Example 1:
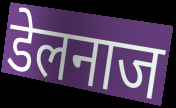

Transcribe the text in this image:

डेलनाज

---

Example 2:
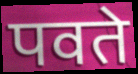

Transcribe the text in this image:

पवते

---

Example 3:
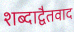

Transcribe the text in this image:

शब्दाद्वैतवाद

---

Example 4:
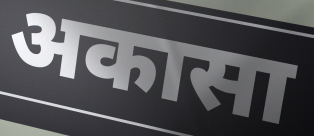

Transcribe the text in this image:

अकासा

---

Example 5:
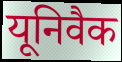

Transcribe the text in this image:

यूनिवैक